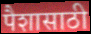
पैशासाठी